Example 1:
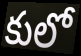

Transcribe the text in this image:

కులో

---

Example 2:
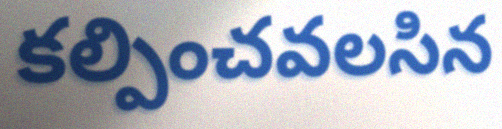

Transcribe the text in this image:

కల్పించవలసిన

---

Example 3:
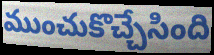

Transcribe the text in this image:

ముంచుకొచ్చేసింది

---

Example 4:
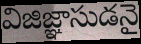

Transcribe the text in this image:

విజిజ్ఞాసుడనై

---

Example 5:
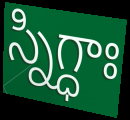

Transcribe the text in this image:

స్నిగ్ధాః